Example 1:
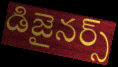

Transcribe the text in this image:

డిజైనర్స్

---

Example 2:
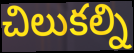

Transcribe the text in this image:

చిలుకల్ని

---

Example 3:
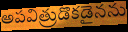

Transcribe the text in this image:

అపవిత్రుడొకడైనను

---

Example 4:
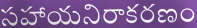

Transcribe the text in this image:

సహాయనిరాకరణం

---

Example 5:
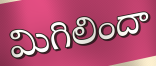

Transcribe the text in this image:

మిగిలిందా